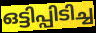
ഒട്ടിപ്പിടിച്ച